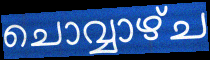
ചൊവ്വാഴ്‌ച